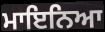
ਮਾਇਨਿਆ